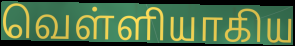
வெள்ளியாகிய